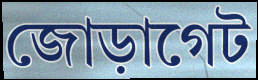
জোড়াগেট